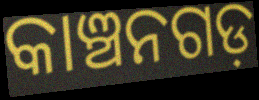
କାଞ୍ଚନଗଡ଼